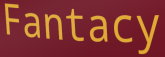
Fantacy